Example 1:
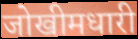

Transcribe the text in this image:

जोखीमधारी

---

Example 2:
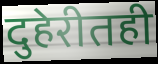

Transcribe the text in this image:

दुहेरीतही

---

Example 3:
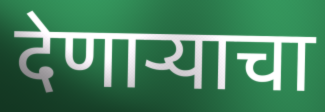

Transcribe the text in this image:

देणार्‍याचा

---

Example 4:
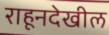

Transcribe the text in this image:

राहूनदेखील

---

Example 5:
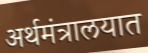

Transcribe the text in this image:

अर्थमंत्रालयात